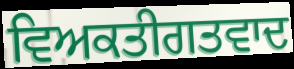
ਵਿਅਕਤੀਗਤਵਾਦ